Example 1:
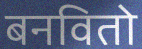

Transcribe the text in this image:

बनवितो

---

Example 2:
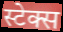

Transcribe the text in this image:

स्टेक्स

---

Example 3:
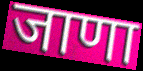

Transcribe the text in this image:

जाणा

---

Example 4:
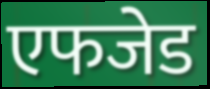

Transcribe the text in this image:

एफजेड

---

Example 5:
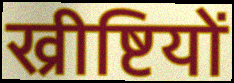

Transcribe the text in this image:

ख्रीष्टियों